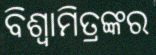
ବିଶ୍ବାମିତ୍ରଙ୍କର